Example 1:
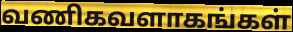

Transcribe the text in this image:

வணிகவளாகங்கள்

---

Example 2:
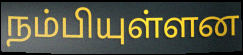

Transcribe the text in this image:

நம்பியுள்ளன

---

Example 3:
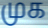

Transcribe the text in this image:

முக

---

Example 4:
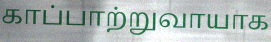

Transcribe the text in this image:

காப்பாற்றுவாயாக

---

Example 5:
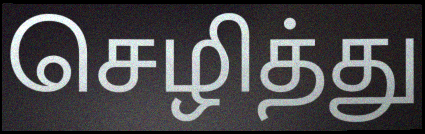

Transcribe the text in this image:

செழித்து